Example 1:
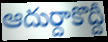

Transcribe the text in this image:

ఆదుర్దాకొద్దీ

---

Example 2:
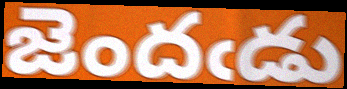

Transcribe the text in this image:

జెందఁడు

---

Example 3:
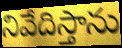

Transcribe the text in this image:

నివేదిస్తాను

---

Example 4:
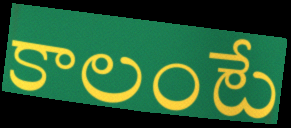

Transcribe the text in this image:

కాలంటే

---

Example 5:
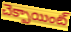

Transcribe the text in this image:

చెక్పాయింట్